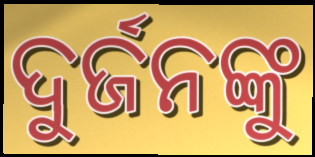
ଦୁର୍ଜନଙ୍କୁ